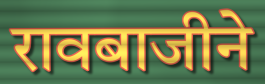
रावबाजीने